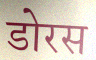
डोरस